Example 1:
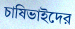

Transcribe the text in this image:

চাষিভাইদের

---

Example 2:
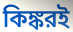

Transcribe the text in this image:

কিঙ্করই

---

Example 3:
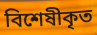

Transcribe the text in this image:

বিশেষীকৃত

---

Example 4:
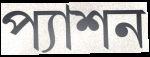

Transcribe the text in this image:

প্যাশন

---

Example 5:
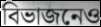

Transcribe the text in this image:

বিভাজনেও